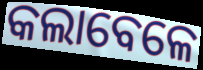
କଲାବେଳେ